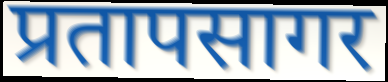
प्रतापसागर